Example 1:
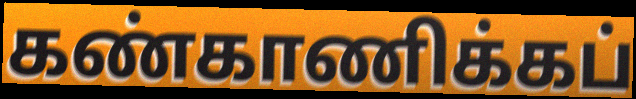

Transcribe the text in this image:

கண்காணிக்கப்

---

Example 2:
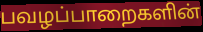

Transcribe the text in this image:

பவழப்பாறைகளின்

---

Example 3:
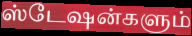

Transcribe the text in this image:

ஸ்டேஷன்களும்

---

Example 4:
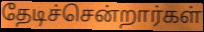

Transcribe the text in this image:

தேடிச்சென்றார்கள்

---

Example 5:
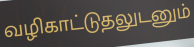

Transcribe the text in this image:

வழிகாட்டுதலுடனும்